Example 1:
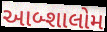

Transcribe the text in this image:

આબ્શાલોમ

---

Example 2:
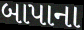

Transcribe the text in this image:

બાપાના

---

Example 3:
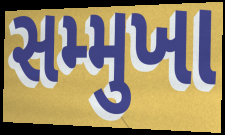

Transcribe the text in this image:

સમ્મુખા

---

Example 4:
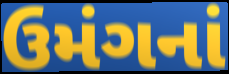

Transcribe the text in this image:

ઉમંગનાં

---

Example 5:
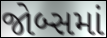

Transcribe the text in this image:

જોબ્સમાં